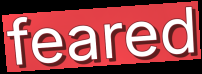
feared